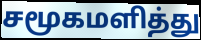
சமூகமளித்து